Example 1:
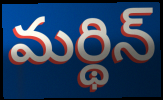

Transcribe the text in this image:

మర్థిన్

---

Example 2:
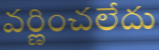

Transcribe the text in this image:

వర్ణించలేదు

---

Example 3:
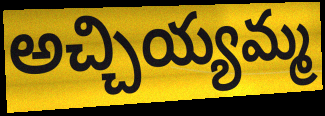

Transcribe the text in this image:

అచ్చియ్యమ్మ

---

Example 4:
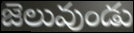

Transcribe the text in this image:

జెలువుండు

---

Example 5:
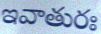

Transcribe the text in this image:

ఇవాతురః